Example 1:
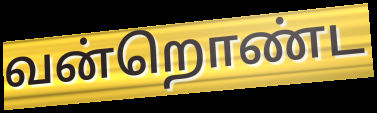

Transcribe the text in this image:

வன்றொண்ட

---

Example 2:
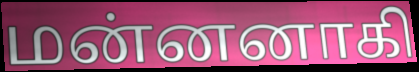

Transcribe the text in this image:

மன்னனாகி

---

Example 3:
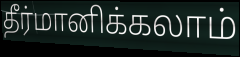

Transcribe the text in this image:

தீர்மானிக்கலாம்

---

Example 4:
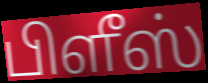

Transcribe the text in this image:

பிளீஸ்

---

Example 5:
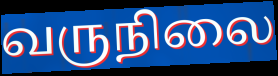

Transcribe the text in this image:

வருநிலை